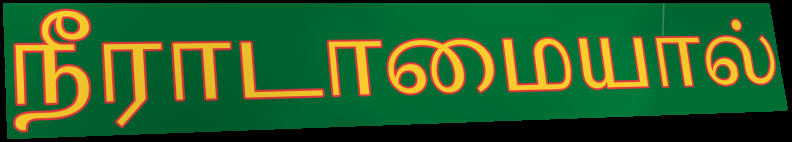
நீராடாமையால்